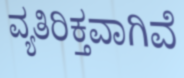
ವ್ಯತಿರಿಕ್ತವಾಗಿವೆ